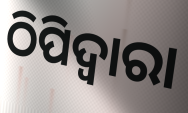
ଠିପିଦ୍ଵାରା